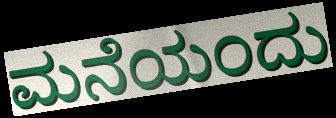
ಮನೆಯಂದು